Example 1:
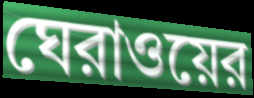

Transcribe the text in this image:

ঘেরাওয়ের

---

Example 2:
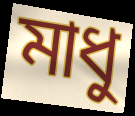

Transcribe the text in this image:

মাধু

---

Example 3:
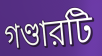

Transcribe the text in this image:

গণ্ডারটি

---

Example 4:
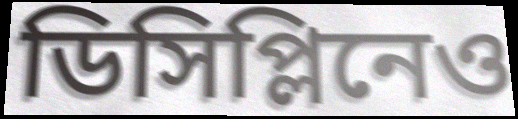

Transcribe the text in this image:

ডিসিপ্লিনেও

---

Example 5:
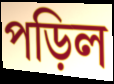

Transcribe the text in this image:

পড়িল